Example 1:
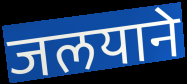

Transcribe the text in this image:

जलयाने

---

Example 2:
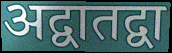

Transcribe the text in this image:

अद्वातद्वा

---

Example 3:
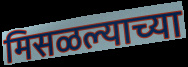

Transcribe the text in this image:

मिसळल्याच्या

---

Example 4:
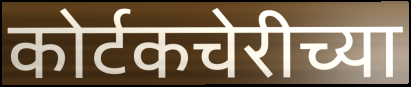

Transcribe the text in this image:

कोर्टकचेरीच्या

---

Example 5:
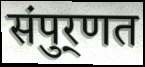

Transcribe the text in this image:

संपुर्णत